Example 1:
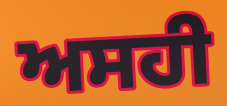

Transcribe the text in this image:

ਅਸਹੀ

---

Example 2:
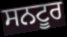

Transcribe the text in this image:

ਸਨਟੂਰ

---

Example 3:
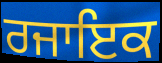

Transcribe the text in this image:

ਰਜਾਇਕ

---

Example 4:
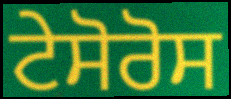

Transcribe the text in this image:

ਟੇਸੋਰੋਸ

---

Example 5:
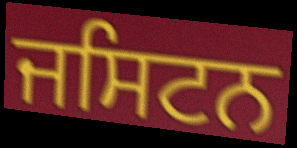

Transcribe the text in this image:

ਜਸਿਟਨ